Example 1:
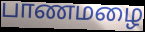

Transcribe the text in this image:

பாணமழை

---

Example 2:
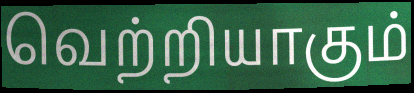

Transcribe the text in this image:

வெற்றியாகும்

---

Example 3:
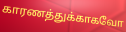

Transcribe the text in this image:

காரணத்துக்காகவோ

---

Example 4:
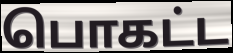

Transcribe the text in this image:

பொகட்ட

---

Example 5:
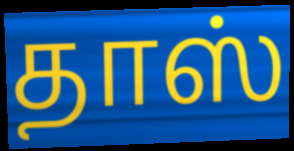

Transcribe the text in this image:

தாஸ்